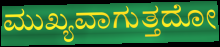
ಮುಖ್ಯವಾಗುತ್ತದೋ